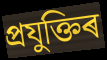
প্ৰযুক্তিৰ